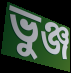
ভুঞ্জ